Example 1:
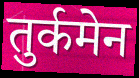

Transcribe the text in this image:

तुर्कमेन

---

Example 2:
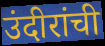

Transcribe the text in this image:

उंदीरांची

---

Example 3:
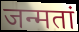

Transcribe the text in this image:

जन्मतां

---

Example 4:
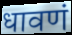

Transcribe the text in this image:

धावणं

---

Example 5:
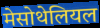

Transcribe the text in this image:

मेसोथेलियल